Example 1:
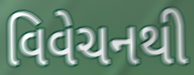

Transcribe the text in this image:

વિવેચનથી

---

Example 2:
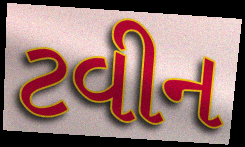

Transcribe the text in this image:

ટવીન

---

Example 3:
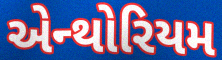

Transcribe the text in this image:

એન્થોરિયમ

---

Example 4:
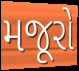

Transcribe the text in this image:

મજૂરો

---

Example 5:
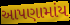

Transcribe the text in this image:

આપણામાંય